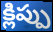
క్లిప్పు